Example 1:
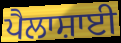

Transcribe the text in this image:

ਪੈਲਾਸ਼ਾਈ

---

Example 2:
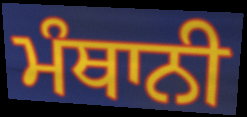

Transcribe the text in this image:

ਮੰਥਾਨੀ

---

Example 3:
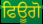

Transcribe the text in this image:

ਫਿਊਗੋ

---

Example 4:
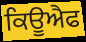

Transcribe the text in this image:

ਕਿਊਐਫ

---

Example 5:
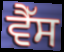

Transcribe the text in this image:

ਵੈੱਸ